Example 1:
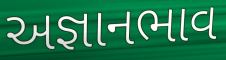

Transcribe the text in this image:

અજ્ઞાનભાવ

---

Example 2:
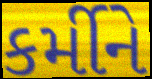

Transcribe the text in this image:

કર્મીને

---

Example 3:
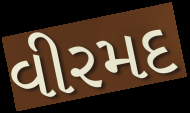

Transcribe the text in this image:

વીરમદ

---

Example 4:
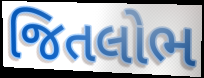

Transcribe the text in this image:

જિતલોભ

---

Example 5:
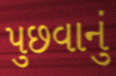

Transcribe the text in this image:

પુછવાનું